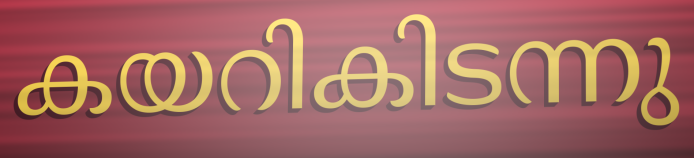
കയറികിടന്നു